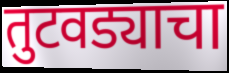
तुटवड्याचा